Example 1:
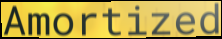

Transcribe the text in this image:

Amortized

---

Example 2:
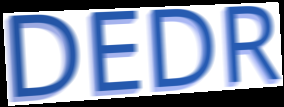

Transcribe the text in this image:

DEDR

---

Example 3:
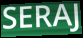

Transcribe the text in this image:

SERAJ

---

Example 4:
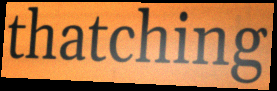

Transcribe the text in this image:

thatching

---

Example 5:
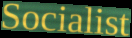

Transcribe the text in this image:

Socialist